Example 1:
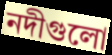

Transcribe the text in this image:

নদীগুলো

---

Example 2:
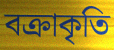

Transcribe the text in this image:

বক্রাকৃতি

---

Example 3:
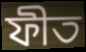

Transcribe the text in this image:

ফীত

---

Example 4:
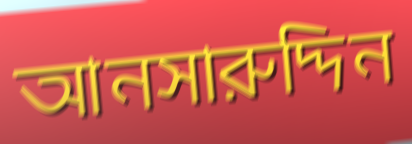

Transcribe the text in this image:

আনসারুদ্দিন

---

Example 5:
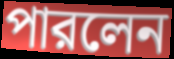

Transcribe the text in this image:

পারলেন